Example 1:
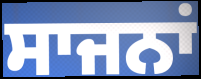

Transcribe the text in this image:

ਸਾਜਨਾਂ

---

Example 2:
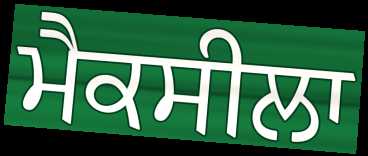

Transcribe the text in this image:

ਮੈਕਸੀਲਾ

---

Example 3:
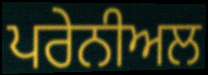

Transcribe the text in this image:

ਪਰੇਨੀਅਲ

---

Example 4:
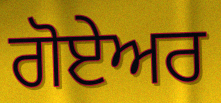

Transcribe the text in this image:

ਗੋਏਅਰ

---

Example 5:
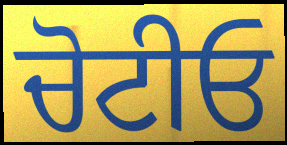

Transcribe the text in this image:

ਚੋਟੀਓ